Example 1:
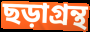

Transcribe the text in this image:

ছড়াগ্রন্থ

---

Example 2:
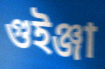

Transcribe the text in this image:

গুইঞ্জা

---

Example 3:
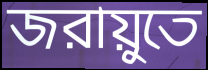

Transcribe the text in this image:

জরায়ুতে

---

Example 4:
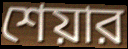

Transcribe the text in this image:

শেয়ার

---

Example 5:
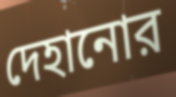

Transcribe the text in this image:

দেহানোর